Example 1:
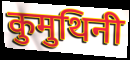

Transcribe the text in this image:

कुमुथिनी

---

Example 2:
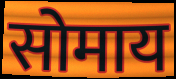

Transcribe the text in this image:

सोमाय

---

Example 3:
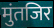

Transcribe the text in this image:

मुंतजिर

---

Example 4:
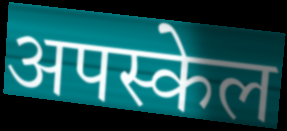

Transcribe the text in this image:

अपस्केल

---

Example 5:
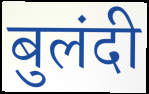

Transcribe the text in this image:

बुलंदी